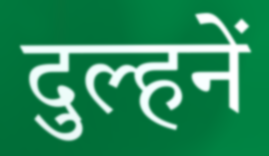
दुल्हनें